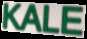
KALE